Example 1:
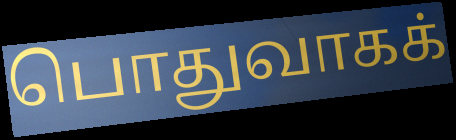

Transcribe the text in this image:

பொதுவாகக்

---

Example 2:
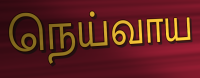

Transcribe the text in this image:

நெய்வாய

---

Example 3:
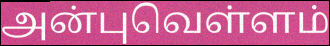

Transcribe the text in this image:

அன்புவெள்ளம்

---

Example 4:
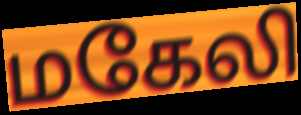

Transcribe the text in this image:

மகேலி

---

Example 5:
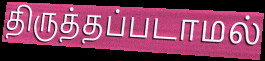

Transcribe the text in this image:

திருத்தப்படாமல்